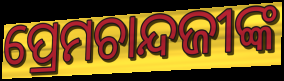
ପ୍ରେମଚାନ୍ଦଜୀଙ୍କ